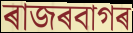
ৰাজৰবাগৰ